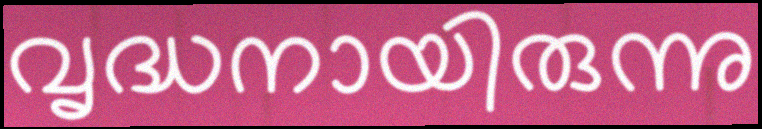
വൃദ്ധനായിരുന്നു